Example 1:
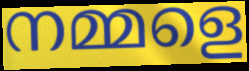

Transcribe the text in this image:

നമ്മളെ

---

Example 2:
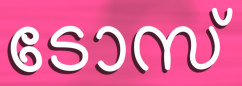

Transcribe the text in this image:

ടോസ്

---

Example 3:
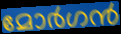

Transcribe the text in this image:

മോർഗൻ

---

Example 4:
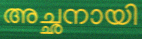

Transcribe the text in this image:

അച്ഛനായി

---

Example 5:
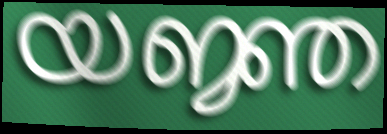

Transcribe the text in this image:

യജ്ഞ